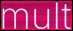
mult